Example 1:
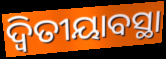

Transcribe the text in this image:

ଦ୍ବିତୀୟାବସ୍ଥା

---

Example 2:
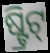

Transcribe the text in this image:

ଷ୍ଟ୍ରିଟ୍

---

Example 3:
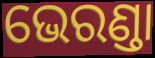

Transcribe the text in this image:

ଭେରଣ୍ଡା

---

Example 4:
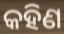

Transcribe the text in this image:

କହିଣ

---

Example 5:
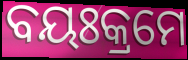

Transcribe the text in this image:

ବୟଃକ୍ରମେ